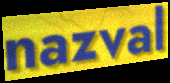
nazval